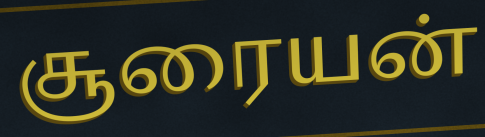
சூரையன்